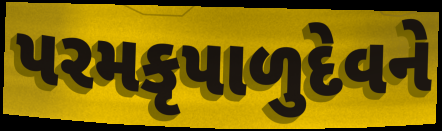
પરમકૃપાળુદેવને